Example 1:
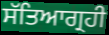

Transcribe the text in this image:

ਸੱਤਿਆਗ੍ਰਹੀ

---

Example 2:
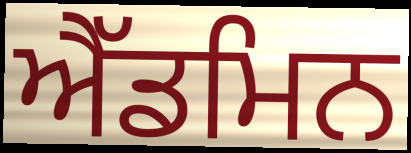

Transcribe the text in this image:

ਐੱਡਮਿਨ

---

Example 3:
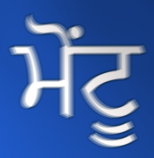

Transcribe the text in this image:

ਮੋਂਟੂ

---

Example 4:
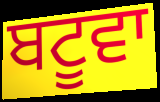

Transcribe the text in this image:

ਬਟੂਵਾ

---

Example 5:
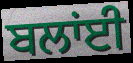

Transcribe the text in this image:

ਬਲਾਂਈ